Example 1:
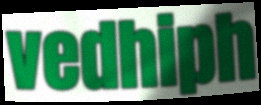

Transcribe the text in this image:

vedhiph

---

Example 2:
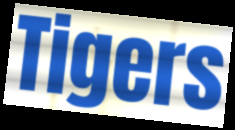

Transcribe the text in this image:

Tigers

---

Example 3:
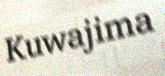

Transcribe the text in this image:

Kuwajima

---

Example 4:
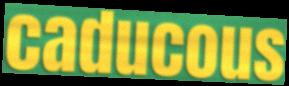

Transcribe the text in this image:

caducous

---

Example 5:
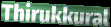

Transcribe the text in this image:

Thirukkural